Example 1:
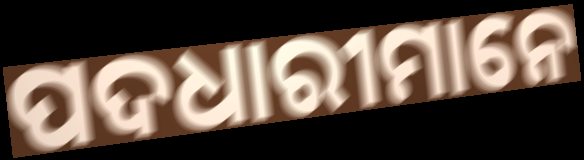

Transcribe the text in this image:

ପଦଧାରୀମାନେ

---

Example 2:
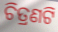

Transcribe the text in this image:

ଚିତ୍ରଣଟି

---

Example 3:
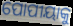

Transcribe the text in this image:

ପୋପୀୟାକୁ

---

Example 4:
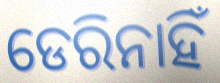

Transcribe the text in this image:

ଡେରିନାହିଁ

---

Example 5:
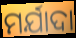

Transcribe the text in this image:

ମର୍ଯାଦା